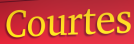
Courtes